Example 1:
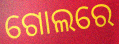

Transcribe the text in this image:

ଗୋଲରେ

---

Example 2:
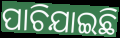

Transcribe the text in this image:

ପାଚିଯାଇଛି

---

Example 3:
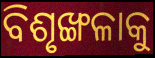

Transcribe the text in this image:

ବିଶୃଙ୍ଖଳାକୁ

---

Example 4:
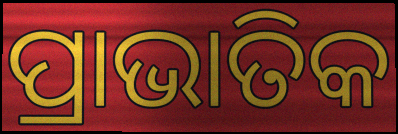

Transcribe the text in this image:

ପ୍ରାଭାତିକ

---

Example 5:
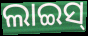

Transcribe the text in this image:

ଲାଇସ୍